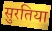
सुरतिया